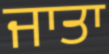
ਜਾਤਾ